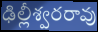
ఢిల్లీశ్వరరావు